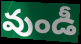
వుండీ